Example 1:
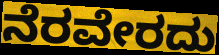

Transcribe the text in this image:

ನೆರವೇರದು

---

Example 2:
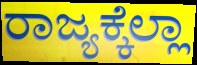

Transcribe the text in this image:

ರಾಜ್ಯಕ್ಕೆಲ್ಲಾ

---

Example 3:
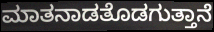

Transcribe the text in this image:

ಮಾತನಾಡತೊಡಗುತ್ತಾನೆ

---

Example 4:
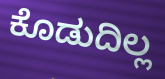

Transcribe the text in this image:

ಕೊಡುದಿಲ್ಲ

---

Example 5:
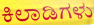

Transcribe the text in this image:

ಕಿಲಾಡಿಗಳು